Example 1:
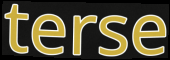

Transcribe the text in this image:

terse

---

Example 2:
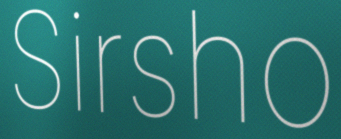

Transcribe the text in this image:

Sirsho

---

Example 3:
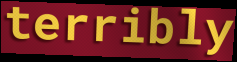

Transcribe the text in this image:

terribly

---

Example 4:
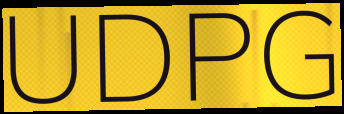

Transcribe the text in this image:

UDPG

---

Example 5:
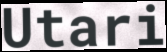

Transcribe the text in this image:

Utari